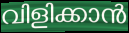
വിളിക്കാൻ